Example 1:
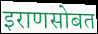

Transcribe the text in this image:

इराणसोबत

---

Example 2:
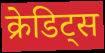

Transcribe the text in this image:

क्रेडिट्स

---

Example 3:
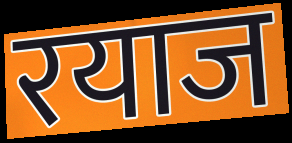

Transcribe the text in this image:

रयाज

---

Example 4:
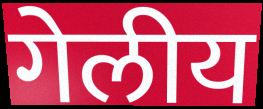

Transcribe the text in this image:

गेलीय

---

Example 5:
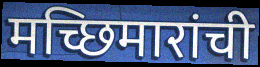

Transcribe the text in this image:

मच्छिमारांची